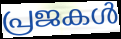
പ്രജകൾ